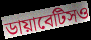
ডায়াবেটিসও